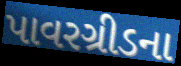
પાવરગ્રીડના